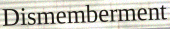
Dismemberment